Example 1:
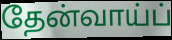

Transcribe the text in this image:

தேன்வாய்ப்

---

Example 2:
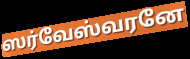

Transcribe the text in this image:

ஸர்வேஸ்வரனே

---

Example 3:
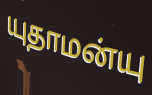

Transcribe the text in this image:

யுதாமன்யு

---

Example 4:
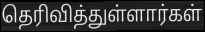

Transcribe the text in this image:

தெரிவித்துள்ளார்கள்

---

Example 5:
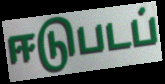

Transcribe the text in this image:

ஈடுபடப்